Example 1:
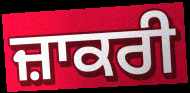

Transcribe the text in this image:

ਜ਼ਾਕਰੀ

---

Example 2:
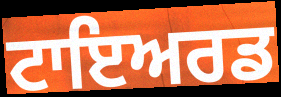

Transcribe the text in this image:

ਟਾਇਅਰਡ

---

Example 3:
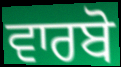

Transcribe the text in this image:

ਵਾਰਬੋ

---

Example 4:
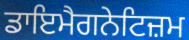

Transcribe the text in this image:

ਡਾਇਮੈਗਨੇਟਿਜ਼ਮ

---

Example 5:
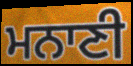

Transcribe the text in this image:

ਮਨਾਣੀ